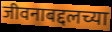
जीवनाबद्दलच्या